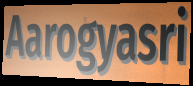
Aarogyasri